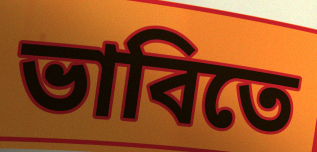
ভাবিতে